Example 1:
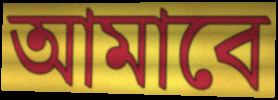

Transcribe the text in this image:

আমাবে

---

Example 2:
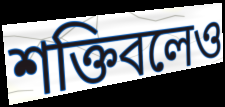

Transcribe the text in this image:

শক্তিবলেও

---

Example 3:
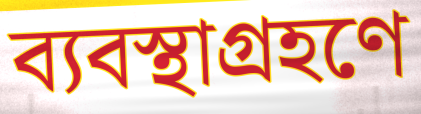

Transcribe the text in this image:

ব্যবস্থাগ্রহণে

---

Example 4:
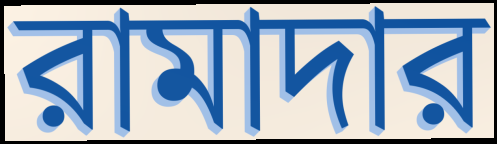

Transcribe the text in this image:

রামাদার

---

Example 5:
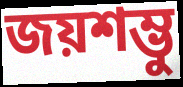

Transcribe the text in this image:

জয়শম্ভু